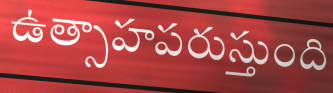
ఉత్సాహపరుస్తుంది